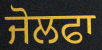
ਜੋਲਫਾ